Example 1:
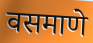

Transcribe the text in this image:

वसमाणे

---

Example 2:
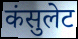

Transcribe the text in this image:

कंसुलेट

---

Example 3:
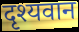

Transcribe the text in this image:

दृश्यवान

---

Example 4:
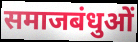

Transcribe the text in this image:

समाजबंधुओं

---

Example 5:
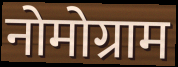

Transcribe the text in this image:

नोमोग्राम